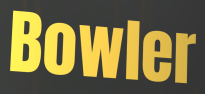
Bowler